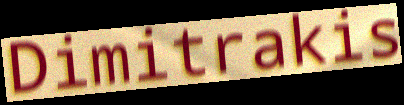
Dimitrakis